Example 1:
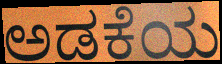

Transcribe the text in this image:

ಅಡಕೆಯ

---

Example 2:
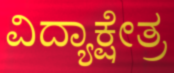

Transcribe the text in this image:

ವಿದ್ಯಾಕ್ಷೇತ್ರ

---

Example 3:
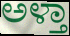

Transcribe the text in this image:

ಅಳ್ತಾ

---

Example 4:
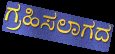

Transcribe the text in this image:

ಗ್ರಹಿಸಲಾಗದ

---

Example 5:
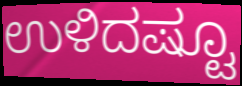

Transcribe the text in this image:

ಉಳಿದಷ್ಟೂ